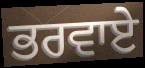
ਭਰਵਾਏ